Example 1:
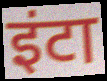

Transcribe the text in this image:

इंटा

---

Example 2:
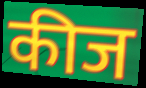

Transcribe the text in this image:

कीज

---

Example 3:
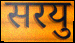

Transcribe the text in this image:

सरयु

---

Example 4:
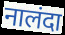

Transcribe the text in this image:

नालंदा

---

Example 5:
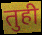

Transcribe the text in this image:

तुही